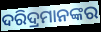
ଦରିଦ୍ରମାନଙ୍କର